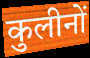
कुलीनों